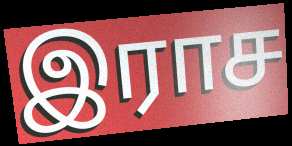
இராச